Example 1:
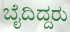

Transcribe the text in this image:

ಬೈದಿದ್ದರು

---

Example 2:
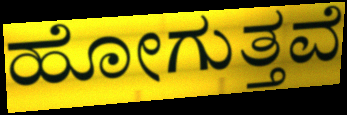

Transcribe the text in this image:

ಹೋಗುತ್ತವೆ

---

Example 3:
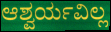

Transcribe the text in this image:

ಆಶ್ವರ್ಯವಿಲ್ಲ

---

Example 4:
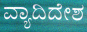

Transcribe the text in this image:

ವ್ಯಾದಿದೇಶ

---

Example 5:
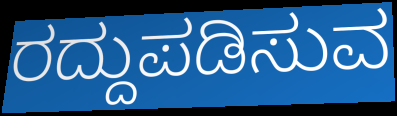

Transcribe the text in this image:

ರದ್ದುಪಡಿಸುವ